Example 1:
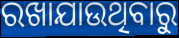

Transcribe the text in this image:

ରଖାଯାଉଥିବାରୁ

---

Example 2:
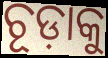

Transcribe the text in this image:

ଚୂଡ଼ାକୁ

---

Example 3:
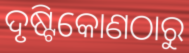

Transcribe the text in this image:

ଦୃଷ୍ଟିକୋଣଠାରୁ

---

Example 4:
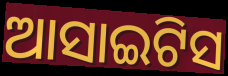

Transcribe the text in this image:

ଆସାଇଟିସ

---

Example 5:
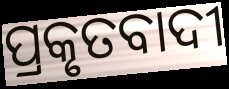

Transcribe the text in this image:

ପ୍ରକୃତବାଦୀ